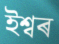
ইশ্বৰ